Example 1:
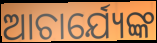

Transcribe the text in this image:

ଆଚାର୍ଯ୍ୟେଙ୍କ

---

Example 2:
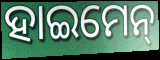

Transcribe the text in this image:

ହାଇମେନ୍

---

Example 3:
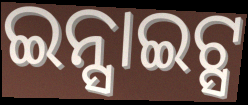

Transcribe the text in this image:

ଇନ୍ସାଇଟ୍ସ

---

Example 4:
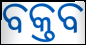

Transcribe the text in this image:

ବକ୍ତବ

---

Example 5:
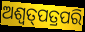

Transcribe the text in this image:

ଅଶ୍ଵତ୍‌ପତ୍ରପରି